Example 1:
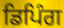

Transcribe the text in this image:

ਡਿਪਿੰਗ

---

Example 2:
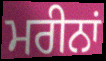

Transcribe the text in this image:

ਮਰੀਨਾਂ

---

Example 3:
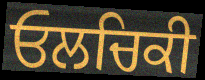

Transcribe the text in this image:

ਓਲਚਿਕੀ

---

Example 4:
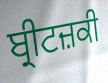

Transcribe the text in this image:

ਬ੍ਰੀਟਜ਼ਕੀ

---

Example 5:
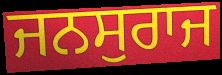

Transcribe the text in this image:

ਜਨਸੁਰਾਜ